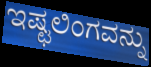
ಇಷ್ಟಲಿಂಗವನ್ನು